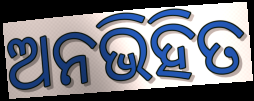
ଅନଭିହିତ